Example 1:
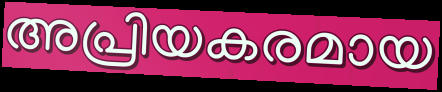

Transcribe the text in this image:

അപ്രിയകരമായ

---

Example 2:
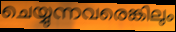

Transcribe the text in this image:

ചെയ്യുന്നവരെങ്കിലും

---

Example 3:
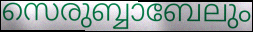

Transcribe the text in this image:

സെരുബ്ബാബേലും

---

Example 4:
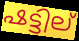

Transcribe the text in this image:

ഷട്ടില്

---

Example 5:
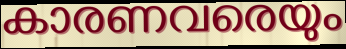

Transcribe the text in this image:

കാരണവരെയും